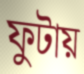
ফুটায়